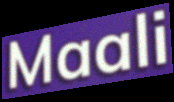
Maali